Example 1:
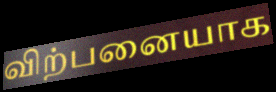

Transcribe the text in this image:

விற்பனையாக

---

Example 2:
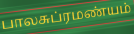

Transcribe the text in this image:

பாலசுப்ரமண்யம்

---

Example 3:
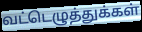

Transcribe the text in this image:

வட்டெழுத்துக்கள்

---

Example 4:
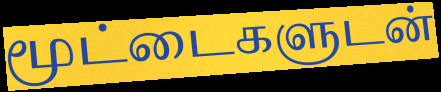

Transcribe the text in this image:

மூட்டைகளுடன்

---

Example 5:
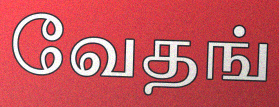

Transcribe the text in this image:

வேதங்